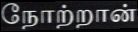
நோற்றான்